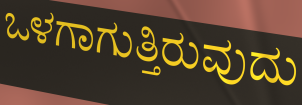
ಒಳಗಾಗುತ್ತಿರುವುದು